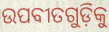
ଉପବୀତଗୁଡ଼ିକୁ